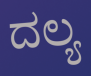
ದಲ್ಯ